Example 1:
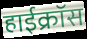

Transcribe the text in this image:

हाईक्रॉस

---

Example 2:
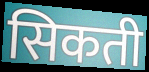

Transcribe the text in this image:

सिकती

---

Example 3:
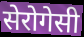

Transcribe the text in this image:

सेरोगेसी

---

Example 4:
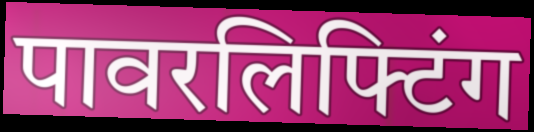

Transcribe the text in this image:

पावरलिफ्टिंग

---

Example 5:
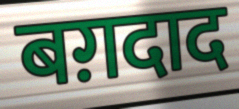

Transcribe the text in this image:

बग़दाद